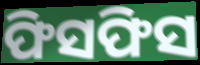
ଫିସଫିସ